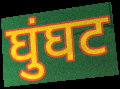
घुंघट